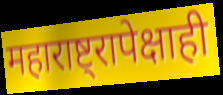
महाराष्ट्रापेक्षाही